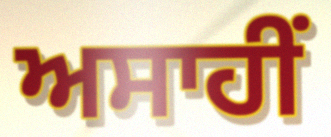
ਅਸਾਹੀਂ